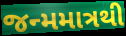
જન્મમાત્રથી